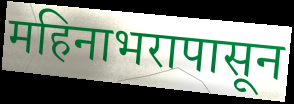
महिनाभरापासून